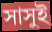
সাসুই